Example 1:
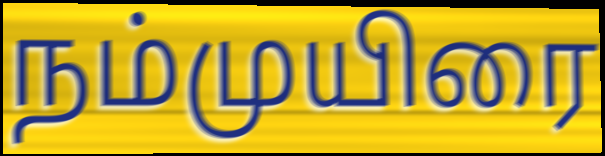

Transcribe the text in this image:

நம்முயிரை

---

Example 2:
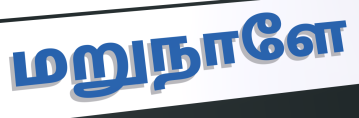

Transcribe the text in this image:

மறுநாளே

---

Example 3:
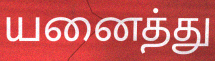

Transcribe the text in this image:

யனைத்து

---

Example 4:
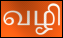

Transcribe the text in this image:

வழி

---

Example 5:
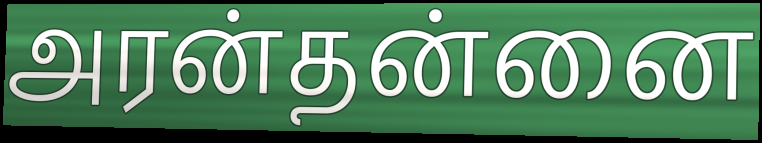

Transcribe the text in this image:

அரன்தன்னை